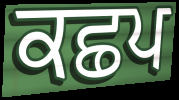
ਕਛਪ